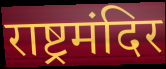
राष्ट्रमंदिर